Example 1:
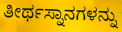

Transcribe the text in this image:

ತೀರ್ಥಸ್ನಾನಗಳನ್ನು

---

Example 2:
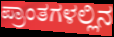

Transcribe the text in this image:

ಪ್ರಾಂತಗಳಲ್ಲಿನ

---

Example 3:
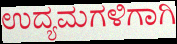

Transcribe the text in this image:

ಉದ್ಯಮಗಳಿಗಾಗಿ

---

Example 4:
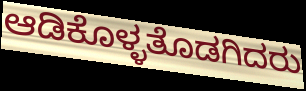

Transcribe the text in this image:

ಆಡಿಕೊಳ್ಳತೊಡಗಿದರು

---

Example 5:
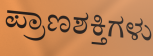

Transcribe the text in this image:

ಪ್ರಾಣಶಕ್ತಿಗಳು